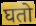
घतो